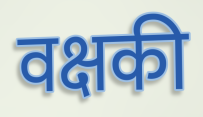
वक्षकी